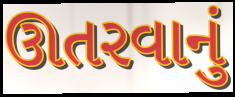
ઊતરવાનું